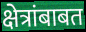
क्षेत्रांबाबत